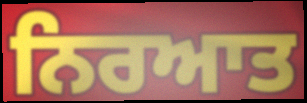
ਨਿਰਆਤ